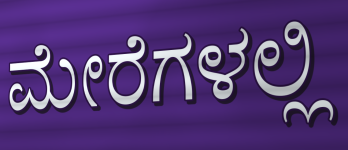
ಮೇರೆಗಳಲ್ಲಿ